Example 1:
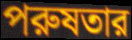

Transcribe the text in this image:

পরুষতার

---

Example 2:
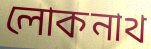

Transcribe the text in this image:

লোকনাথ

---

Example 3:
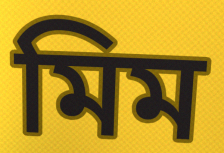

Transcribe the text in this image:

মিম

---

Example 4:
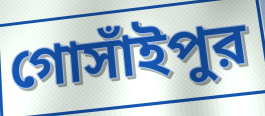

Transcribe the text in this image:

গোসাঁইপুর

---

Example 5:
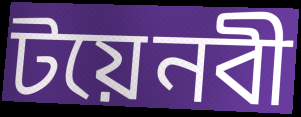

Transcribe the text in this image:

টয়েনবী